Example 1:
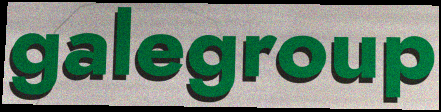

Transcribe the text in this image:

galegroup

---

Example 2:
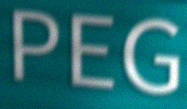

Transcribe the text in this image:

PEG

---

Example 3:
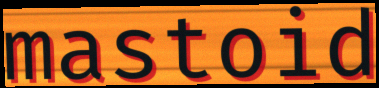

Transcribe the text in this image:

mastoid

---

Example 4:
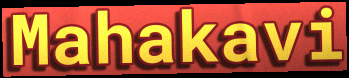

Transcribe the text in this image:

Mahakavi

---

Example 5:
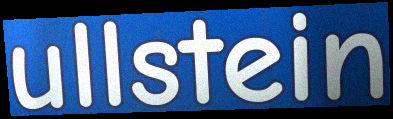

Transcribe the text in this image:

ullstein